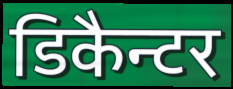
डिकैन्टर